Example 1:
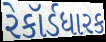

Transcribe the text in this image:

રેકૉર્ડધારક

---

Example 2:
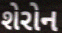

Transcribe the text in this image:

શેરોન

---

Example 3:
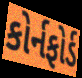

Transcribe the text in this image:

કોર્નફોર્ડ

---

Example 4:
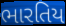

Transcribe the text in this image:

ભારતિય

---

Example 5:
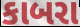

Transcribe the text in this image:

કાબરા